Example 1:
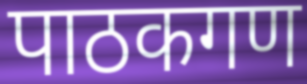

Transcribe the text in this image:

पाठकगण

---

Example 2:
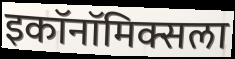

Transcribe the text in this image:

इकॉनॉमिक्सला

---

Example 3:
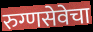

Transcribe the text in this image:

रुग्णसेवेचा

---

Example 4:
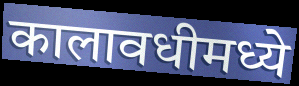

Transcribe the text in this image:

कालावधीमध्ये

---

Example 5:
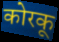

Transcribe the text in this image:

कोरकू